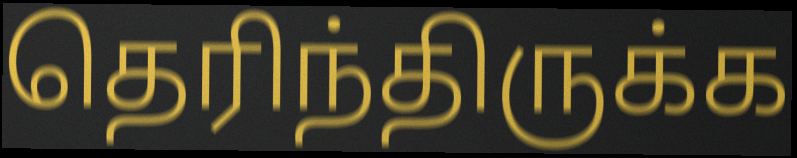
தெரிந்திருக்க